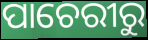
ପାଚେରୀରୁ